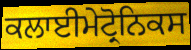
ਕਲਾਈਮੇਟ੍ਰੋਨਿਕਸ